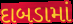
દાબડામાં